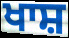
ਖਾਸ਼